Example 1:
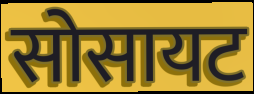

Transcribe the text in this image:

सोसायट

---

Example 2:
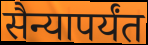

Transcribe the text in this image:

सैन्यापर्यंत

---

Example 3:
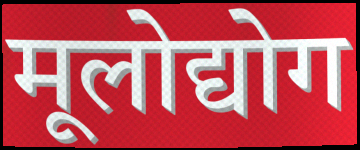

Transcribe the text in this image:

मूलोद्योग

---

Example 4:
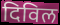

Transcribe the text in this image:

दिविल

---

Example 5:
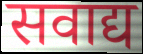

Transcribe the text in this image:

सवाद्य